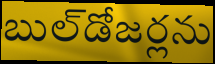
బుల్‌డోజర్లను